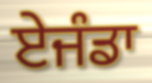
ਏਜੰਡਾ